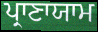
ਪ੍ਰਾਣਾਯਾਮ